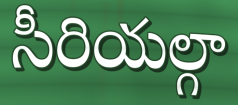
సీరియల్గా